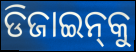
ଡିଜାଇନ୍‌କୁ